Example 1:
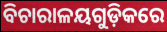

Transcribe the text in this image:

ବିଚାରାଳୟଗୁଡ଼ିକରେ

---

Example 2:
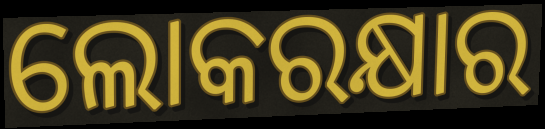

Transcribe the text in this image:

ଲୋକରକ୍ଷାର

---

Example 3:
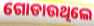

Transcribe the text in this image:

ଗୋଡାଉଥିଲେ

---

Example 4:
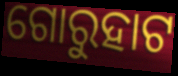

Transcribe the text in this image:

ଗୋରୁହାଟ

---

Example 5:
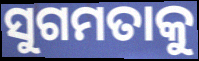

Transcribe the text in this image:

ସୁଗମତାକୁ